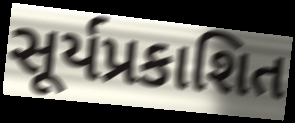
સૂર્યપ્રકાશિત